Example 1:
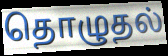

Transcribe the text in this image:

தொழுதல்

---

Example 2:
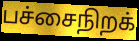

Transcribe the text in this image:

பச்சைநிறக்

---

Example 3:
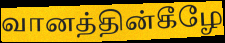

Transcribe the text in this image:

வானத்தின்கீழே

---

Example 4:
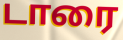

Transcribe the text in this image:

டாரை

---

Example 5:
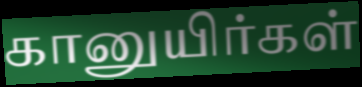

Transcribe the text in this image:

கானுயிர்கள்